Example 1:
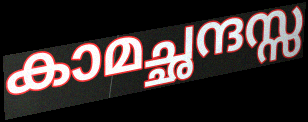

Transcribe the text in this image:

കാമച്ഛന്ദസ്സ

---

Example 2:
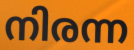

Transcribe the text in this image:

നിരന്ന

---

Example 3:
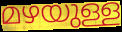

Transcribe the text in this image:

മഴയുള്ള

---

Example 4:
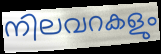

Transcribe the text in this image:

നിലവറകളും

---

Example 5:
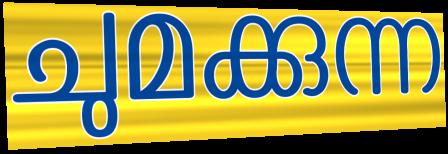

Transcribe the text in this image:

ചുമക്കുന്ന